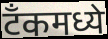
टॅंकमध्ये